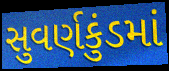
સુવર્ણકુંડમાં